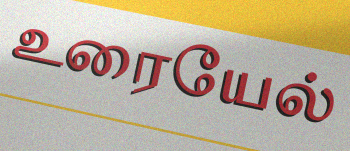
உரையேல்